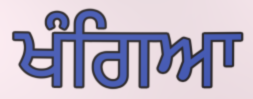
ਖੰਗਿਆ